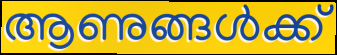
ആണുങ്ങൾക്ക്